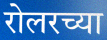
रोलरच्या